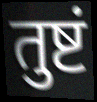
तुष्टं